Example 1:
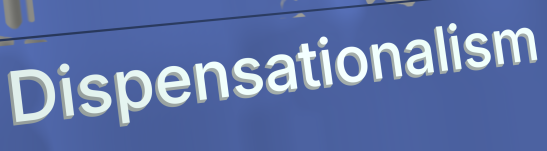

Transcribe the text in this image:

Dispensationalism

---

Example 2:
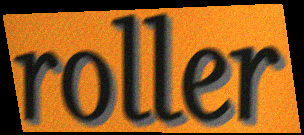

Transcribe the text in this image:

roller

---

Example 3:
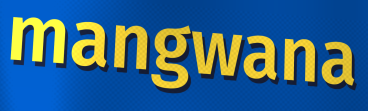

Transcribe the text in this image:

mangwana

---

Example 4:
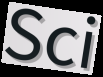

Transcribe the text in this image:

Sci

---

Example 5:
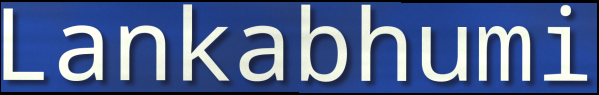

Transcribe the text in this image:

Lankabhumi